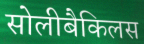
सोलीबैकिलस